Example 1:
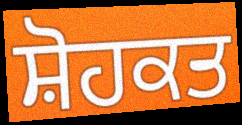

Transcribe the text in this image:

ਸ਼ੋਹਕਤ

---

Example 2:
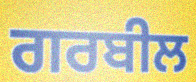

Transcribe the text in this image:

ਗਰਬੀਲ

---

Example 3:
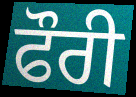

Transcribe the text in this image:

ਫੌਰੀ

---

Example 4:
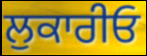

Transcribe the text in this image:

ਲੁਕਾਰੀਓ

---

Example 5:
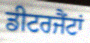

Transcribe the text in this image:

ਡੀਟਰਜੈਂਟਾਂ